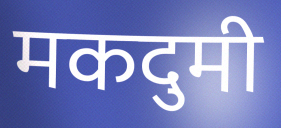
मकदुमी